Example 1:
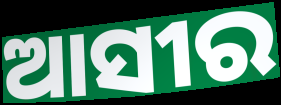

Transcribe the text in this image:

ଆସୀର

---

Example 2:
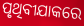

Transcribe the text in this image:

ପୃଥିବୀଯାକରେ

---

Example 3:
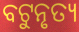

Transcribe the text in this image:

ବଟୁନୃତ୍ୟ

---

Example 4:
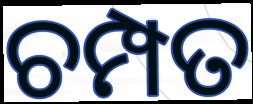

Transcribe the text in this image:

ଚମ୍ପତ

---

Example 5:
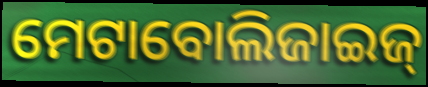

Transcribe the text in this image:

ମେଟାବୋଲିଜାଇଜ୍